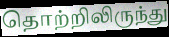
தொற்றிலிருந்து